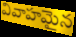
వివాహమైన